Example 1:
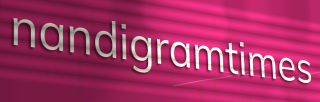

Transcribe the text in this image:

nandigramtimes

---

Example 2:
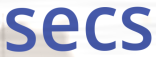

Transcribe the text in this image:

secs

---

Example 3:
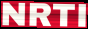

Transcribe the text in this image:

NRTI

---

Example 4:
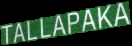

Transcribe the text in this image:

TALLAPAKA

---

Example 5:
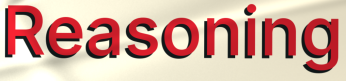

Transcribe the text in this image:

Reasoning